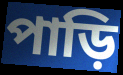
পাড়ি